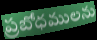
ప్రబోధములను